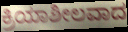
ಕ್ರಿಯಾಶೀಲವಾದ